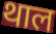
थाल